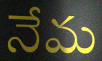
నేమ